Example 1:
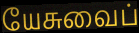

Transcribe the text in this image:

யேசுவைப்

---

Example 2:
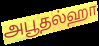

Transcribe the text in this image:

அபூதல்ஹா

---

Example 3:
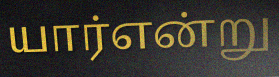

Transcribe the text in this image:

யார்என்று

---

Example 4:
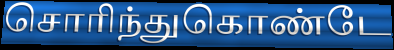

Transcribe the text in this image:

சொரிந்துகொண்டே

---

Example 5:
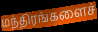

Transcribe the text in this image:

மந்திரங்களைச்